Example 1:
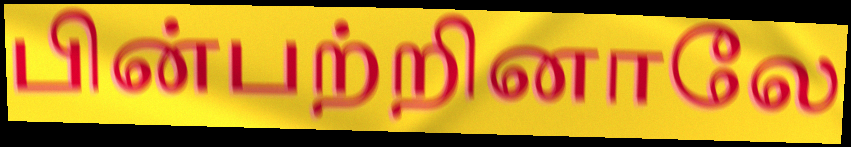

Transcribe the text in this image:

பின்பற்றினாலே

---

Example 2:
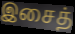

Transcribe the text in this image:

இசைத்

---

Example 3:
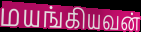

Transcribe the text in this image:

மயங்கியவன்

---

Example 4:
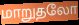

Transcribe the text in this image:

மாறுதலோ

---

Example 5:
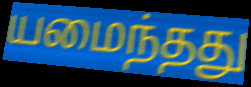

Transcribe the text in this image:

யமைந்தது